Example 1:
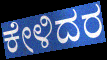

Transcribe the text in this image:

ಕೇಳಿದರ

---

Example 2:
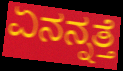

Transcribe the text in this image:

ಏನನ್ನತ್ತೆ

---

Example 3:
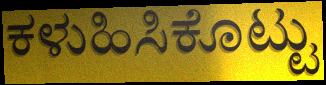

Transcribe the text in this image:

ಕಳುಹಿಸಿಕೊಟ್ಟು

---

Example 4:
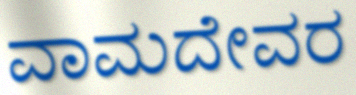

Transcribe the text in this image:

ವಾಮದೇವರ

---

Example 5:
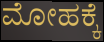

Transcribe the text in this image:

ಮೋಹಕ್ಕೆ